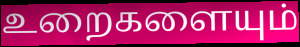
உறைகளையும்